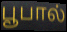
பூபால்